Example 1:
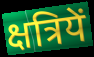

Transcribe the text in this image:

क्षत्रियें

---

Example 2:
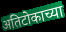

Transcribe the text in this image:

अतिटोकाच्या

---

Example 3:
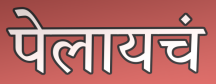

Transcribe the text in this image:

पेलायचं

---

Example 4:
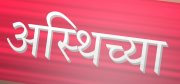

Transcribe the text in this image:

अस्थिच्या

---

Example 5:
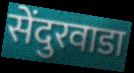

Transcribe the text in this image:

सेंदुरवाडा